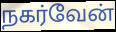
நகர்வேன்